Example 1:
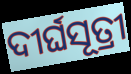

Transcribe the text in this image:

ଦୀର୍ଘସୂତ୍ରୀ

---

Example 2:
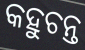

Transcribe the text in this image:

କହୁଚନ୍ତ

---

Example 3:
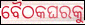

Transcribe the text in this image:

ବୈଠକଘରକୁ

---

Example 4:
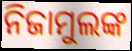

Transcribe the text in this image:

ନିଜାମୁଲଙ୍କ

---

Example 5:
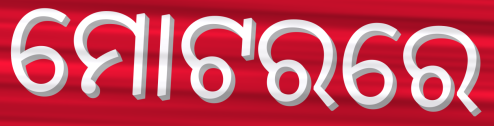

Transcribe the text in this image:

ମୋଟରରେ